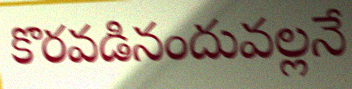
కొరవడినందువల్లనే